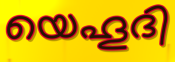
യെഹൂദി